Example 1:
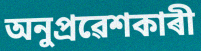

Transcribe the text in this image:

অনুপ্ৰৱেশকাৰী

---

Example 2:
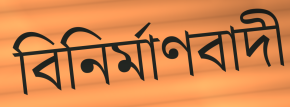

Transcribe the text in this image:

বিনিৰ্মাণবাদী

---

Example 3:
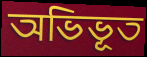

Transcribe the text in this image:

অভিভূত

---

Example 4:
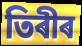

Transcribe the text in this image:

তিৰীৰ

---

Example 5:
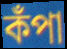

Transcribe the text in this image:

কঁপা